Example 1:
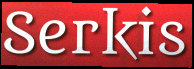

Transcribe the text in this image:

Serkis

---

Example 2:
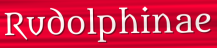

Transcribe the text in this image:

Rudolphinae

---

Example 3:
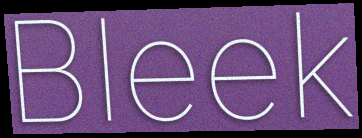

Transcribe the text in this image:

Bleek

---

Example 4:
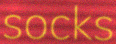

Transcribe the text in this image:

socks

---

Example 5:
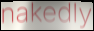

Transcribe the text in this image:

nakedly